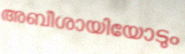
അബീശായിയോടും